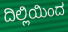
ದಿಲ್ಲಿಯಿಂದ